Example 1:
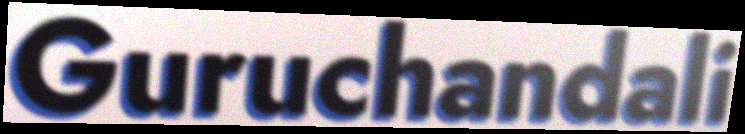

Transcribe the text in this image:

Guruchandali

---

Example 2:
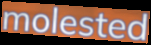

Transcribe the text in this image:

molested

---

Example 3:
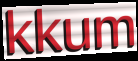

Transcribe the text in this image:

kkum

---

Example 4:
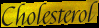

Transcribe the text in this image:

Cholesterol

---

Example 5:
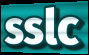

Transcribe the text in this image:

sslc